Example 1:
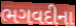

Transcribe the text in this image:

ભગવદીના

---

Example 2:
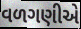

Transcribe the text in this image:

વળગણીએ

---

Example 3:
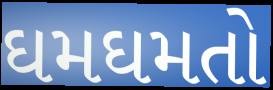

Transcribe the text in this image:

ઘમઘમતો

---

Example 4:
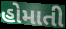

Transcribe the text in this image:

હોમાતી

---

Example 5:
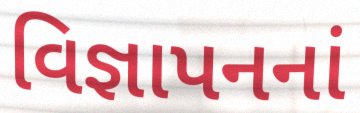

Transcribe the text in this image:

વિજ્ઞાપનનાં